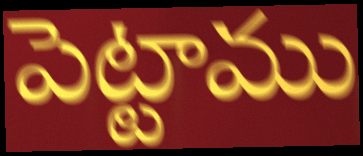
పెట్టాము